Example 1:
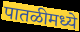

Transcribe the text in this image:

पातळीमध्ये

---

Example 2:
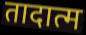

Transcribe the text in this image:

तादात्म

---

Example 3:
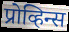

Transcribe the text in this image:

प्रोव्हिन्स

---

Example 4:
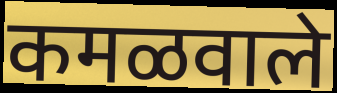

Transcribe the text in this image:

कमळवाले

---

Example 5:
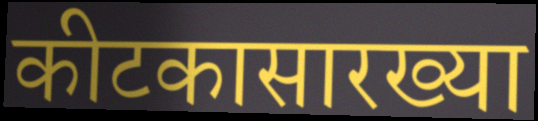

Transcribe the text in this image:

कीटकासारख्या